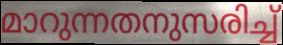
മാറുന്നതനുസരിച്ച്